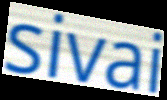
sivai